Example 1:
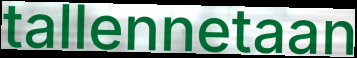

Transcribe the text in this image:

tallennetaan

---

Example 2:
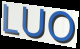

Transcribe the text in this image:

LUO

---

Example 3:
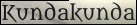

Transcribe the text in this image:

Kundakunda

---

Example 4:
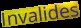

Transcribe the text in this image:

Invalides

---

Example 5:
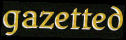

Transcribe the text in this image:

gazetted